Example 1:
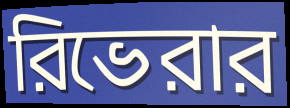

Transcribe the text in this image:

রিভেরার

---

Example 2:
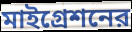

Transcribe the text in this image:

মাইগ্রেশনের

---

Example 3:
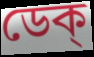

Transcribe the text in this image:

ডেক্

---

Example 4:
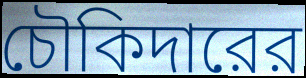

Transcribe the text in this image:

চৌকিদারের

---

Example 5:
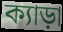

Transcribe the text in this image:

ক্যাড়া